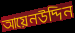
আয়েনউদ্দিন